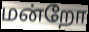
மன்றோ